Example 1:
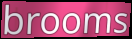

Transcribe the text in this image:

brooms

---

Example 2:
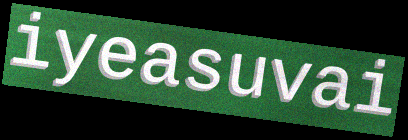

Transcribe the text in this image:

iyeasuvai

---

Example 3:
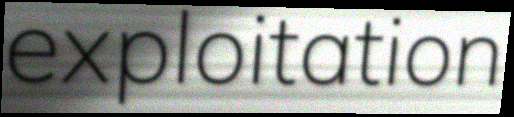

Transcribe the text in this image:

exploitation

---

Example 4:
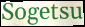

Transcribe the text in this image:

Sogetsu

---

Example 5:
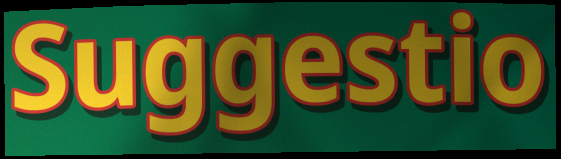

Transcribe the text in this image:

Suggestio